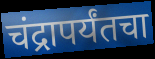
चंद्रापर्यंतचा